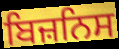
ਬਿਜ਼ਨਿਸ